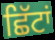
ਛਿੱਟਾਂ